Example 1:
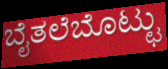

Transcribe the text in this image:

ಬೈತಲೆಬೊಟ್ಟು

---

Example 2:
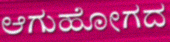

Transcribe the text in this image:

ಆಗುಹೋಗದ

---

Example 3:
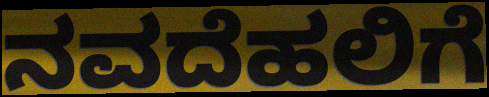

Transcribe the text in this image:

ನವದೆಹಲಿಗೆ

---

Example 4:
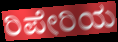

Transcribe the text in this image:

ರಿಪೇರಿಯ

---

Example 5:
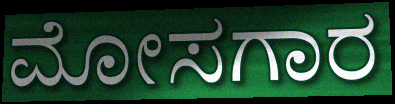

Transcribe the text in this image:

ಮೋಸಗಾರ